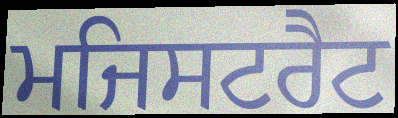
ਮਜਿਸਟਰੈਟ